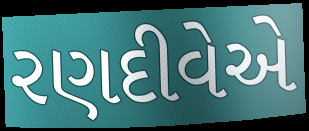
રણદીવેએ